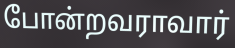
போன்றவராவார்